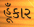
હૂઁકાર